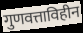
गुणवत्ताविहीन